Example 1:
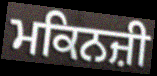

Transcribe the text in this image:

ਮਕਿਨਜ਼ੀ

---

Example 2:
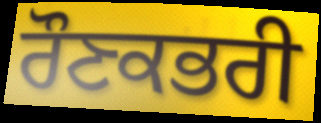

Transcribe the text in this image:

ਰੌਣਕਭਰੀ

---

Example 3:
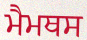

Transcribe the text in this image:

ਮੈਮਥਸ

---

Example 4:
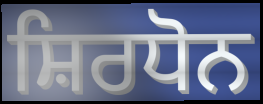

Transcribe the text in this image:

ਸ਼ਿਰਧੋਨ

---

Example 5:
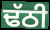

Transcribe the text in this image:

ਢੱਠੀ